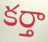
కర్తా